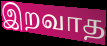
இறவாத